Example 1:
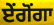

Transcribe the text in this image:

ਏਂਗੋਂਗਾ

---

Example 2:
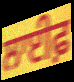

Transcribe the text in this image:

ਲਾਈਫ਼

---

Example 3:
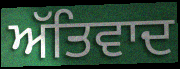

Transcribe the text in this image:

ਅੱਤਿਵਾਦ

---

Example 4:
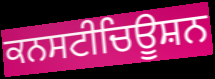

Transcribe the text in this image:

ਕਨਸਟੀਚਿਊਸ਼ਨ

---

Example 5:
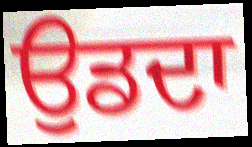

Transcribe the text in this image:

ਉਡਦਾ